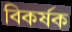
বিকৰ্ষক